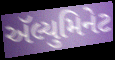
ઍલ્યુમિનેટ